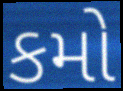
કમો